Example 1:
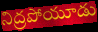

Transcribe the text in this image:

నిద్రపోయూడు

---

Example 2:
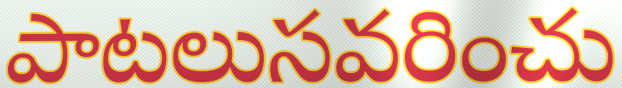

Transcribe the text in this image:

పాటలుసవరించు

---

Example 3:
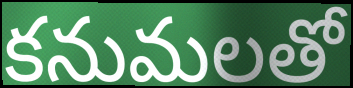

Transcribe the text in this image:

కనుమలతో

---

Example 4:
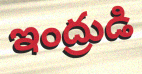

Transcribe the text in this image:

ఇంద్రుడి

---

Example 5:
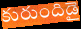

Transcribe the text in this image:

కురుందిడై